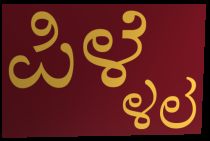
ಪಿಳ್ಳೈ